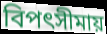
বিপৎসীমায়